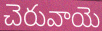
చెరువాయె